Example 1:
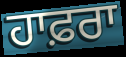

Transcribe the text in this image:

ਹਾਫ਼ਰਾ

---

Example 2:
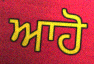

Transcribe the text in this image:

ਆਹੋ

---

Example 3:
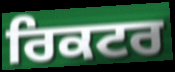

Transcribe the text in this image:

ਰਿਕਟਰ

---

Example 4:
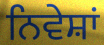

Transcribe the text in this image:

ਨਿਵੇਸ਼ਾਂ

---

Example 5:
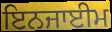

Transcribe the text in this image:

ਇਨਜਾਈਮ